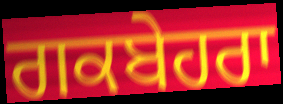
ਗਕਬੇਹਰਾ